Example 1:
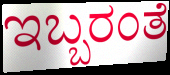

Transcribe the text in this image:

ಇಬ್ಬರಂತೆ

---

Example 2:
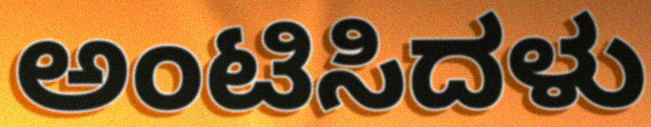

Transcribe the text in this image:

ಅಂಟಿಸಿದಳು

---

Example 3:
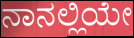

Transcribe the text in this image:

ನಾನಲ್ಲಿಯೇ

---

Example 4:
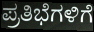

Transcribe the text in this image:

ಪ್ರತಿಭೆಗಳಿಗೆ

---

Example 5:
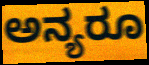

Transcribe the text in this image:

ಅನ್ಯರೂ